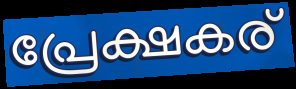
പ്രേക്ഷകര്